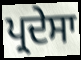
ਪ੍ਰਦੇਸਾ